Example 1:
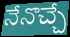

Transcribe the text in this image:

నేనొచ్చే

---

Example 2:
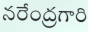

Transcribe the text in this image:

నరేంద్రగారి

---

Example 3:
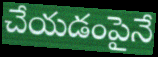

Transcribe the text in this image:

చేయడంపైనే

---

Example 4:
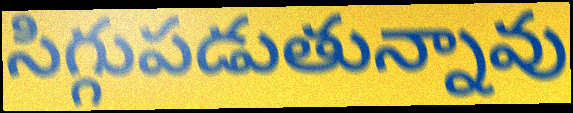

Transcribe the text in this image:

సిగ్గుపడుతున్నావు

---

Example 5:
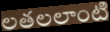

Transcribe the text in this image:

లతలలాంటి